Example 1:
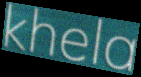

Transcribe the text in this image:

khela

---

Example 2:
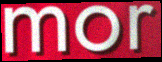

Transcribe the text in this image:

mor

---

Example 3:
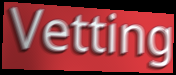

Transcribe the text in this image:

Vetting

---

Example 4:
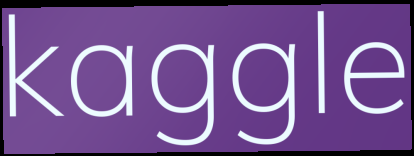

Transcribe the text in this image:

kaggle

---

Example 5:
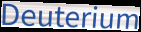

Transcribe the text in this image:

Deuterium